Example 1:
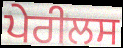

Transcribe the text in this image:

ਪੇਰੀਲਸ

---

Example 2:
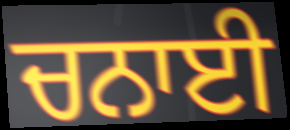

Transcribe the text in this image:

ਚਨਾਈ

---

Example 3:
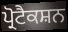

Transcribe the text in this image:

ਪ੍ਰੋਟੈਕਸ਼ਨ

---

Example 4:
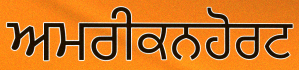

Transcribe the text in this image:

ਅਮਰੀਕਨਹੋਰਟ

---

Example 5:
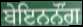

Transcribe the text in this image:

ਬੇਇਨਨੌੰਗ